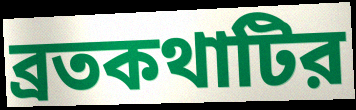
ব্রতকথাটির